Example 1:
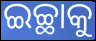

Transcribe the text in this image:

ଇଚ୍ଛାକୁ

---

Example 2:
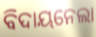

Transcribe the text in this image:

ବିଦାୟନେଲା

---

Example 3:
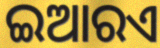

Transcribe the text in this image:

ଇଆରଏ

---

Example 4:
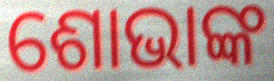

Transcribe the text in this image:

ଶୋଭାଙ୍କ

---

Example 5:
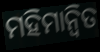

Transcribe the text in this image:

ମହିମାନ୍ଵିତ